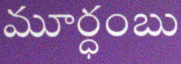
మూర్ధంబు